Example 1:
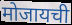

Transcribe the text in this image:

मोजायची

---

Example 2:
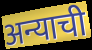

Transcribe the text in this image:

अन्याची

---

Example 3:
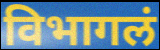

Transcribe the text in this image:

विभागलं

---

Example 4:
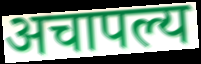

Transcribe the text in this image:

अचापल्य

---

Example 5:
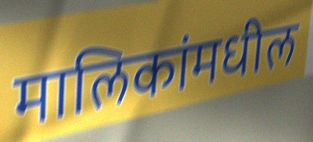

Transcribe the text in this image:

मालिकांमधील